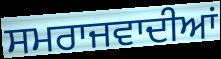
ਸਮਰਾਜਵਾਦੀਆਂ